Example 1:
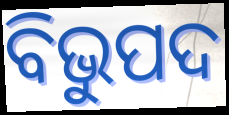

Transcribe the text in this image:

ବିଭୁପଦ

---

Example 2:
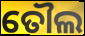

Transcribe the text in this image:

ତୌଲ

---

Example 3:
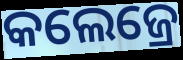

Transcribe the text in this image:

କଲେଜ୍ରେ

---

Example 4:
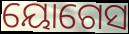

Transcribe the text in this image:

ୟୋଗେସ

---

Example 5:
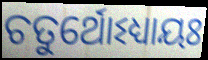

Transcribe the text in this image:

ଚତୁର୍ଥୋଽଧ୍ୟାୟଃ